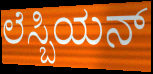
ಲೆಸ್ಬಿಯನ್